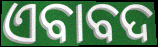
ଏବାବଦ